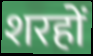
शरहों